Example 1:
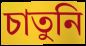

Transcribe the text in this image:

চাতুনি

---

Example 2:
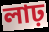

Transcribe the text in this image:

লাঢ়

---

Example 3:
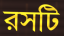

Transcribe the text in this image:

রসটি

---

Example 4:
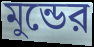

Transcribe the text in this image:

মুন্ডের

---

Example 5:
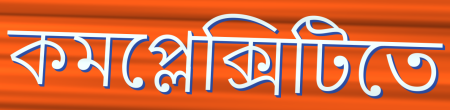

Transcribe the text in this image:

কমপ্লেক্সিটিতে